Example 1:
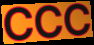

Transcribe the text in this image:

CCC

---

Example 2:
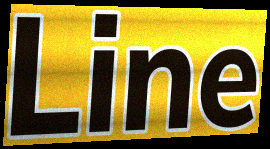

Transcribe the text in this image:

Line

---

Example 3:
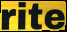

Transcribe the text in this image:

rite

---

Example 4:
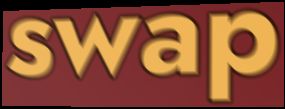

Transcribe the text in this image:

swap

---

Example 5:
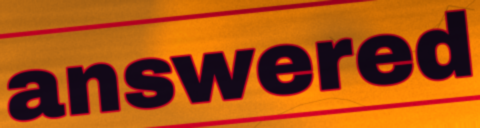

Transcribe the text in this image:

answered